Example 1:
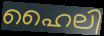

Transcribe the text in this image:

ഹൈലി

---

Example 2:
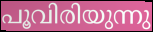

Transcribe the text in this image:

പൂവിരിയുന്നു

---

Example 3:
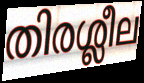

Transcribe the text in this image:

തിരശ്ലീല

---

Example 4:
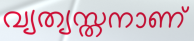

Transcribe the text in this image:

വ്യത്യസ്തനാണ്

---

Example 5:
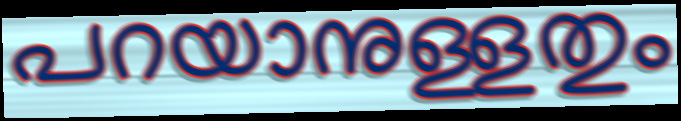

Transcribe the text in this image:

പറയാനുള്ളതും